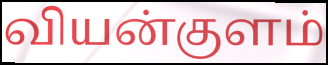
வியன்குளம்